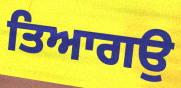
ਤਿਆਗਉ